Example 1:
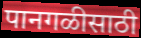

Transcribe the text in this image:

पानगळीसाठी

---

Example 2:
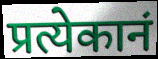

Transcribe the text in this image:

प्रत्येकानं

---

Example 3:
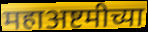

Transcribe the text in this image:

महाअष्टमीच्या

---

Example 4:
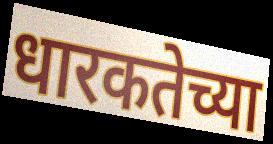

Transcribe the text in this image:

धारकतेच्या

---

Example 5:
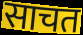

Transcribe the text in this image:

साचत